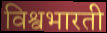
विश्वभारती